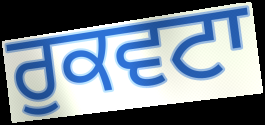
ਰੁਕਵਟਾ